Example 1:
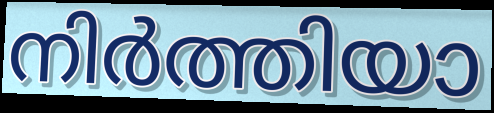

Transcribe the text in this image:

നിർത്തിയാ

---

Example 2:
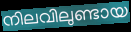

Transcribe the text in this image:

നിലവിലുണ്ടായ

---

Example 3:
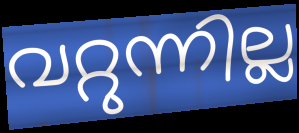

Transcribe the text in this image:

വറ്റുന്നില്ല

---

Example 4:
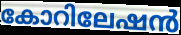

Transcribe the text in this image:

കോറിലേഷൻ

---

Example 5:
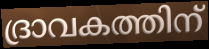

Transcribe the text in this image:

ദ്രാവകത്തിന്